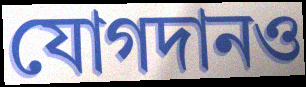
যোগদানও